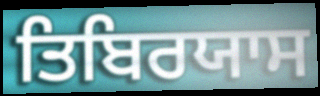
ਤਿਬਿਰਯਾਸ